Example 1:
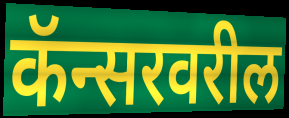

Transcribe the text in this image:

कॅन्सरवरील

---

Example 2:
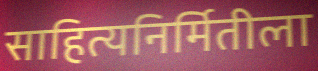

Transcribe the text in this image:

साहित्यनिर्मितीला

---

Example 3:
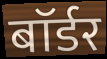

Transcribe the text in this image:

बॉर्डर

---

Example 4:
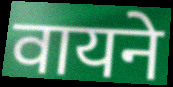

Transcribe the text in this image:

वायने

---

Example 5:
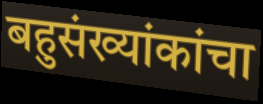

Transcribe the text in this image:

बहुसंख्यांकांचा